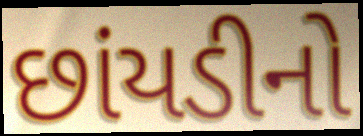
છાંયડીનો